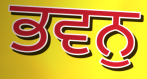
ਭਵਨੁ